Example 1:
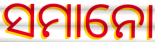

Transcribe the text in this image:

ସମାନୋ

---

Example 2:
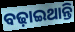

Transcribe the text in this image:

ବଢ଼ାଇଥାନ୍ତି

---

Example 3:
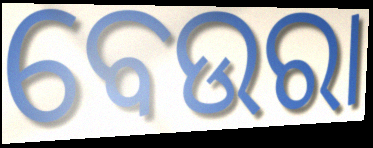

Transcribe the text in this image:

ବେଉରା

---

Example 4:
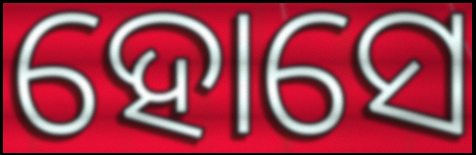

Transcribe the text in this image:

ହୋସେ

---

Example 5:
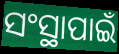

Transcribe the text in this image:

ସଂସ୍ଥାପାଇଁ